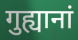
गुह्यानां